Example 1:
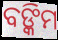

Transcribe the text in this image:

ବଙ୍କିମ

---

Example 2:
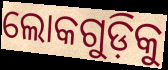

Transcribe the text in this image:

ଲୋକଗୁଡ଼ିକୁ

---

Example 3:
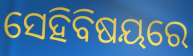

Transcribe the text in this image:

ସେହିବିଷୟରେ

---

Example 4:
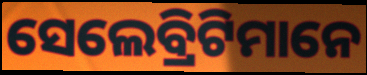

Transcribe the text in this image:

ସେଲେବ୍ରିଟିମାନେ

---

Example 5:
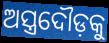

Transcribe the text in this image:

ଅସ୍ତ୍ରଦୌଡ଼କୁ